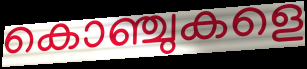
കൊഞ്ചുകളെ